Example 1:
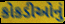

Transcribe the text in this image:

કોકડીઓનું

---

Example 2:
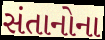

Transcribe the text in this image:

સંતાનોના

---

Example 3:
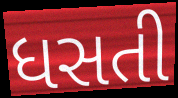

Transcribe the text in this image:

ધસતી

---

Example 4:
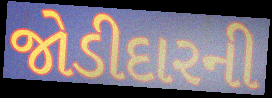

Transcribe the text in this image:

જોડીદારની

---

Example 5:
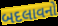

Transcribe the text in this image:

બદલાવનો